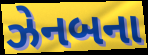
ઝેનબના